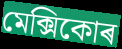
মেক্সিকোৰ